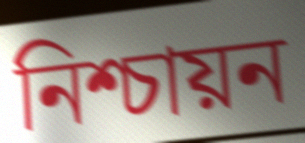
নিশ্চায়ন